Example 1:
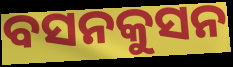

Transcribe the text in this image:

ବସନକୁସନ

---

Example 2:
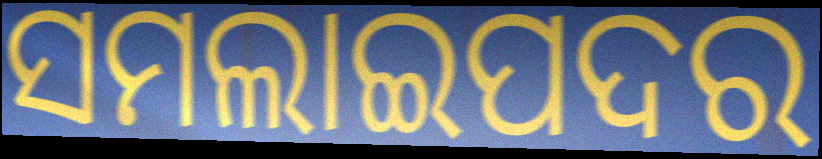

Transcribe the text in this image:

ସମଲାଇପଦର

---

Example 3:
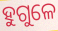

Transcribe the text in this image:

ହୁଗୁଳେ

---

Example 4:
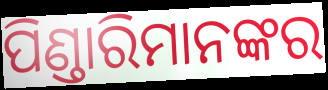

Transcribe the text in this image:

ପିଣ୍ଡାରିମାନଙ୍କର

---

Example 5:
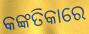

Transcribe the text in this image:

କଙ୍କତିକାରେ